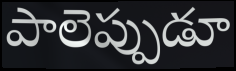
పాలెప్పుడూ